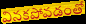
వినకపోవడంతో